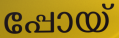
പ്പോയ്